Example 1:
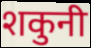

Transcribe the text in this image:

शकुनी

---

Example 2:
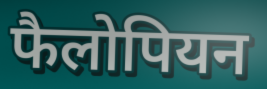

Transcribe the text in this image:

फैलोपियन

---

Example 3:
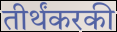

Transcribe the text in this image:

तीर्थंकरकी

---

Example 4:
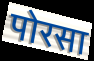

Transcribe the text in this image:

पोरसा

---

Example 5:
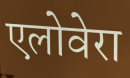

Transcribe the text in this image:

एलोवेरा